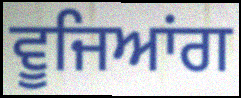
ਵੂਜਿਆਂਗ